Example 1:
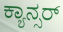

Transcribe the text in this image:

ಕ್ಯಾನ್ಸರ್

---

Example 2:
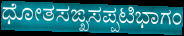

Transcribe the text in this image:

ಧೋತಸಙ್ಖಸಪ್ಪಟಿಭಾಗಂ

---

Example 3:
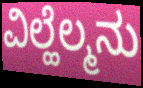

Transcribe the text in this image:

ವಿಲ್ಹೆಲ್ಮನು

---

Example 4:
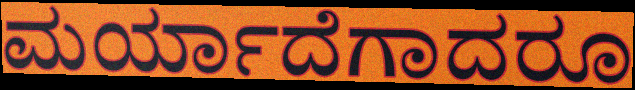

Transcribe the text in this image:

ಮರ್ಯಾದೆಗಾದರೂ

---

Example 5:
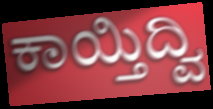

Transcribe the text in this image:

ಕಾಯ್ತಿದ್ವಿ